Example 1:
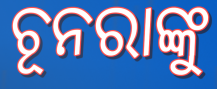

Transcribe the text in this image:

ଚୂନରାଙ୍କୁ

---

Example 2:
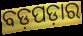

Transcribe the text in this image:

ବଡ଼ପଡ଼ାର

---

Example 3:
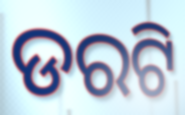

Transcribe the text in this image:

ଡରଟି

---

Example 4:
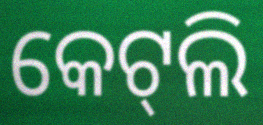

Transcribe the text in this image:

କେଟ୍‌ଲି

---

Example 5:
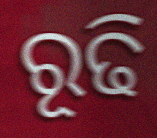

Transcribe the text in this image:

ରୂଢି